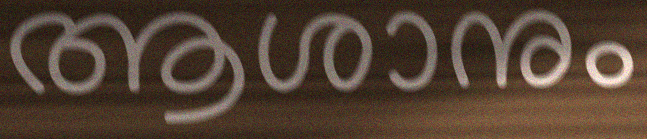
ആശാനും